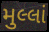
મુલ્લાં